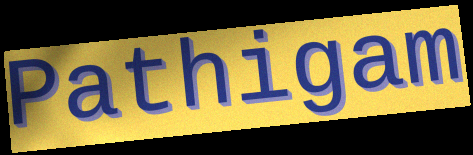
Pathigam